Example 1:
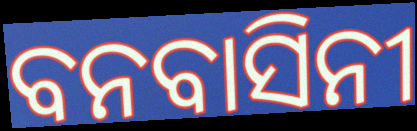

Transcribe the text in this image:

ବନବାସିନୀ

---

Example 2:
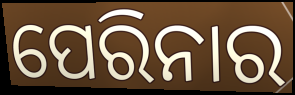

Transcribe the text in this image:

ପେରିନାର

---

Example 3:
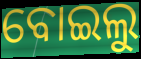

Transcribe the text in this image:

ବୋଇଲୁ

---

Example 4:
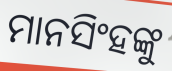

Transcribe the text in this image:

ମାନସିଂହଙ୍କୁ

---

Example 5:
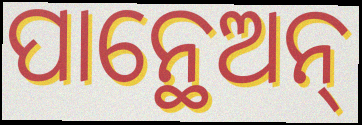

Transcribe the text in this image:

ପାନ୍ଥେଅନ୍